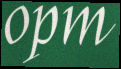
opm